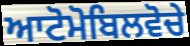
ਆਟੋਮੋਬਿਲਵੋਚੇ